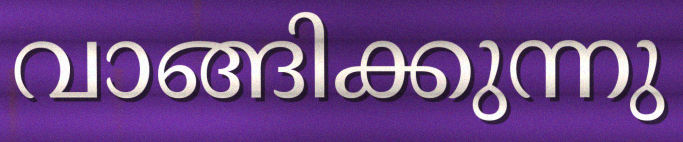
വാങ്ങിക്കുന്നു